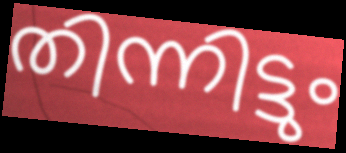
തിന്നിട്ടും